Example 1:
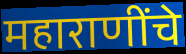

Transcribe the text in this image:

महाराणींचे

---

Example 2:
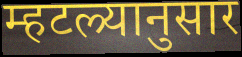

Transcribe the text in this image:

म्हटल्यानुसार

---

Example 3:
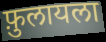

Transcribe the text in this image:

फ़ुलायला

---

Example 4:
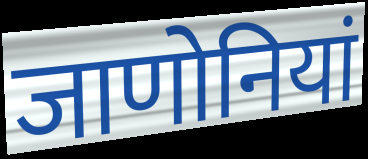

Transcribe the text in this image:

जाणोनियां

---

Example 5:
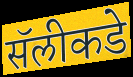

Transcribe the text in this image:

सॅलीकडे